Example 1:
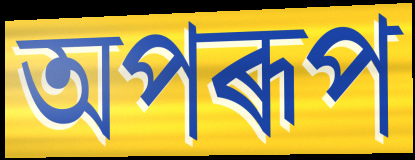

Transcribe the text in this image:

অপৰূপ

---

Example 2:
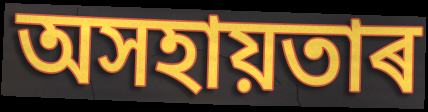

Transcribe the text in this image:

অসহায়তাৰ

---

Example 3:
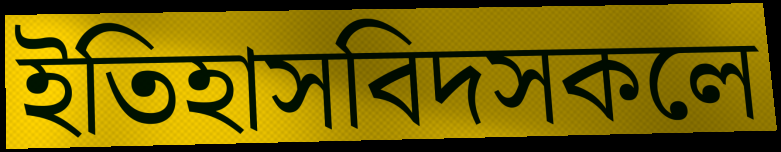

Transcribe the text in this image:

ইতিহাসবিদসকলে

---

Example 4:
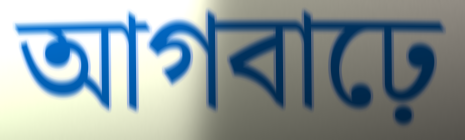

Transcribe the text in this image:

আগবাঢ়ে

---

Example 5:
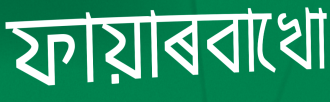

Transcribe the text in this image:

ফায়াৰবাখো